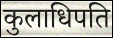
कुलाधिपति